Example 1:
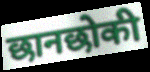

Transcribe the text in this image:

छानछोकी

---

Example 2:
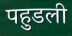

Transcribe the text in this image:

पहुडली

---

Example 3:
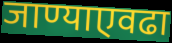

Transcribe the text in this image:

जाण्याएवढा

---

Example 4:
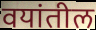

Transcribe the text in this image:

वयांतील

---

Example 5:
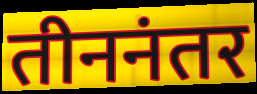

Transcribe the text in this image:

तीननंतर